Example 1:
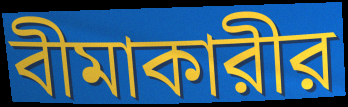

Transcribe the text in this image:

বীমাকারীর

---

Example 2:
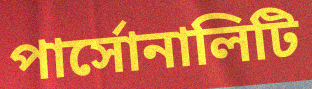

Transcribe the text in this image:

পার্সোনালিটি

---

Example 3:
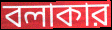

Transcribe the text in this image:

বলাকার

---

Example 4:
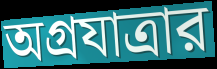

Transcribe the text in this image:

অগ্রযাত্রার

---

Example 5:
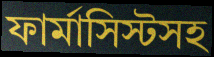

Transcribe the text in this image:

ফার্মাসিস্টসহ